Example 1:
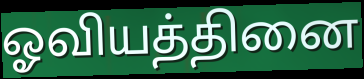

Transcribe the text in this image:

ஓவியத்தினை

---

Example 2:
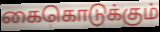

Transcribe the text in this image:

கைகொடுக்கும்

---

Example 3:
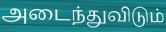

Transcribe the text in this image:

அடைந்துவிடும்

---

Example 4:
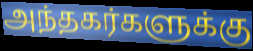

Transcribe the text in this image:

அந்தகர்களுக்கு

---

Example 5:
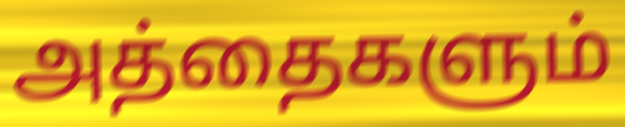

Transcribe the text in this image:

அத்தைகளும்